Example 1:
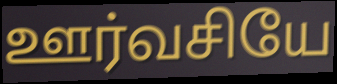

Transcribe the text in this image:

ஊர்வசியே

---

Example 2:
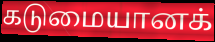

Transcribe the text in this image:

கடுமையானக்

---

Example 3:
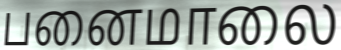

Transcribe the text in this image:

பனைமாலை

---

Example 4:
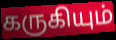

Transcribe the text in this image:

கருகியும்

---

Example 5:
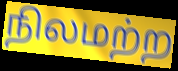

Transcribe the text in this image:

நிலமற்ற